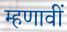
म्हणावीं